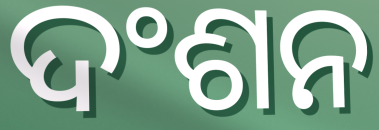
ଦଂଶନ